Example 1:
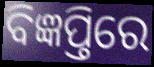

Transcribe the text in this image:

ବିଜ୍ଞପ୍ତିରେ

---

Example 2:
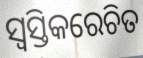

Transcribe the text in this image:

ସ୍ୱସ୍ତିକରେଚିତ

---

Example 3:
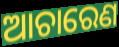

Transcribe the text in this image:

ଆଚାରେଣ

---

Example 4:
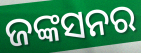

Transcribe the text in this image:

ଜଙ୍କସନର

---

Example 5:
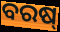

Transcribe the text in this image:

ବରଷ୍